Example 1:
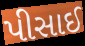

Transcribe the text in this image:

પીસાઈ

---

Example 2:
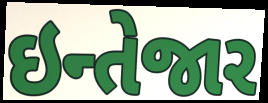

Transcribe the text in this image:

ઇન્તેજાર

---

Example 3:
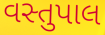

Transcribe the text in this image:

વસ્તુપાલ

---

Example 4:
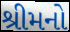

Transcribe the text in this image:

શ્રીમનો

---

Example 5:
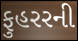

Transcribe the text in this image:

ફુહરરની